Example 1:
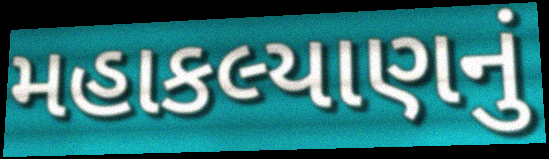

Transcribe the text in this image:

મહાકલ્યાણનું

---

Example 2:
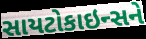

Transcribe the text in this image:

સાયટોકાઇન્સને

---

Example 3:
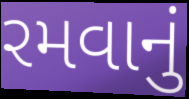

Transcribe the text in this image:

રમવાનું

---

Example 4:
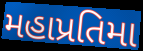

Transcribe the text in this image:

મહાપ્રતિમા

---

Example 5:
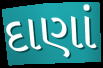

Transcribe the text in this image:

દાણાં